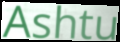
Ashtu